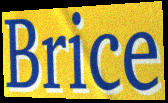
Brice